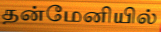
தன்மேனியில்